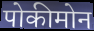
पोकीमोन